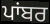
ਪਾਂਬਰ